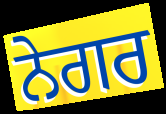
ਨੇਗਰ